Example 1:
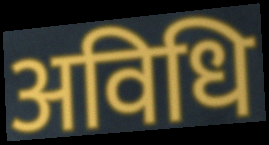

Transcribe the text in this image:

अविधि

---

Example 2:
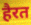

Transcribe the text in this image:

हैरत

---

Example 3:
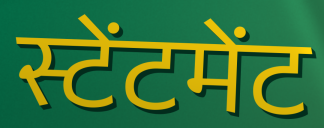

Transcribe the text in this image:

स्टेंटमेंट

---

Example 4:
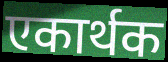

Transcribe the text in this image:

एकार्थक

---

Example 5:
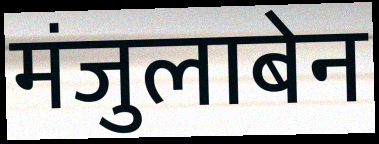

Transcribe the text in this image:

मंजुलाबेन